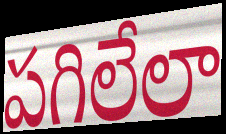
పగిలేలా